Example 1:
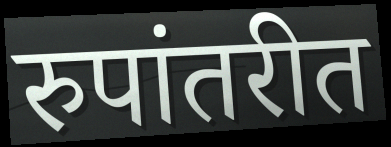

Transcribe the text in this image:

रुपांतरीत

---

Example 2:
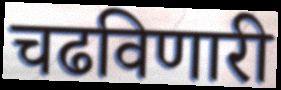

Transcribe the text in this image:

चढविणारी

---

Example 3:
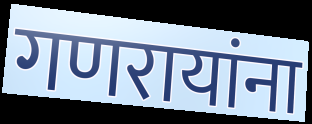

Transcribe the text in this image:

गणरायांना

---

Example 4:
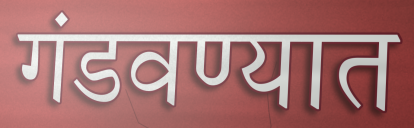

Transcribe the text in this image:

गंडवण्यात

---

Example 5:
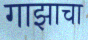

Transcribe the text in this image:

गाझाचा